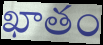
ఖాతం